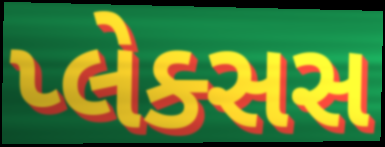
પ્લેક્સસ